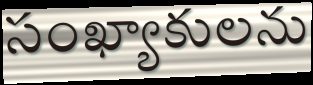
సంఖ్యాకులను